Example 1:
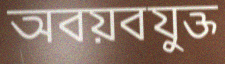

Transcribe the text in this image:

অবয়বযুক্ত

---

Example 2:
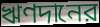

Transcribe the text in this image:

ঋণদানের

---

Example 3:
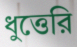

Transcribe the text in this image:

ধুত্তেরি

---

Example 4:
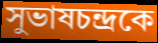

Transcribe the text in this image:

সুভাষচন্দ্রকে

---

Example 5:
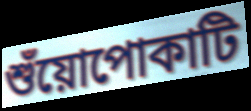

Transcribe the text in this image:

শুঁয়োপোকাটি